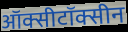
ऑक्सीटॉक्सीन